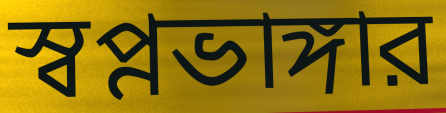
স্বপ্নভাঙ্গার